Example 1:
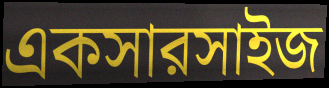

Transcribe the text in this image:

একসারসাইজ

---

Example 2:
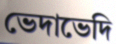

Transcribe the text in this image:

ভেদাভেদি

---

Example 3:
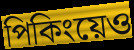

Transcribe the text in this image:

পিকিংয়েও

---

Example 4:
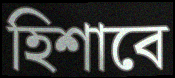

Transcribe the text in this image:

হিশাবে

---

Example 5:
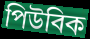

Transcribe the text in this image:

পিউবিক